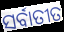
ସର୍ବାତୀତ